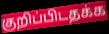
குறிப்பிடதக்க